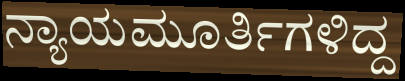
ನ್ಯಾಯಮೂರ್ತಿಗಳಿದ್ದ